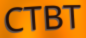
CTBT